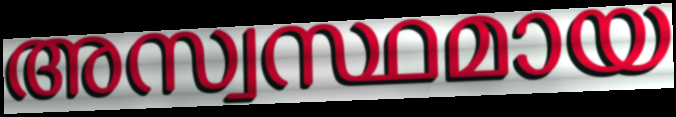
അസ്വസ്ഥമായ